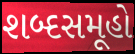
શબ્દસમૂહો